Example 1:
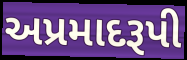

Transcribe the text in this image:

અપ્રમાદરૂપી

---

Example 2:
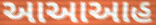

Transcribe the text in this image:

આઆઆહ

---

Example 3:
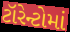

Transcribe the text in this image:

ટૉરેન્ટોમાં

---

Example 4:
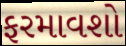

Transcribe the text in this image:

ફરમાવશો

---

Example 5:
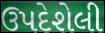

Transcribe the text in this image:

ઉપદેશેલી